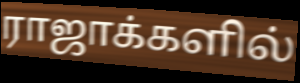
ராஜாக்களில்